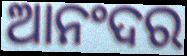
ଆନଂଦର